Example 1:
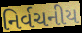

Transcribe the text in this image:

નિર્વચનીય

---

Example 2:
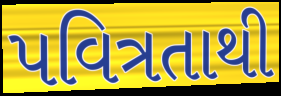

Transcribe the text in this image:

પવિત્રતાથી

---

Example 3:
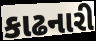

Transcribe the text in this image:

કાઢનારી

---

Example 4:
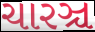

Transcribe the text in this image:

ચારઞ્ચ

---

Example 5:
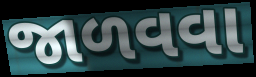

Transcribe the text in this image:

જાળવવા